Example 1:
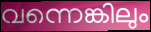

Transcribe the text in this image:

വന്നെങ്കിലും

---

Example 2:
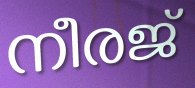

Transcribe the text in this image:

നീരജ്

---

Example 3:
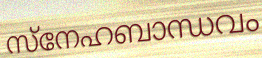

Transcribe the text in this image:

സ്നേഹബാന്ധവം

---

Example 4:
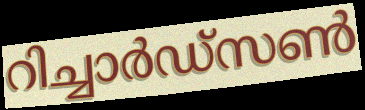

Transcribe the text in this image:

റിച്ചാർഡ്സൺ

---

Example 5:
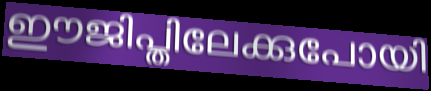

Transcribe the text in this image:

ഈജിപ്തിലേക്കുപോയി